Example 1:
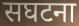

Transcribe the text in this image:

सघटना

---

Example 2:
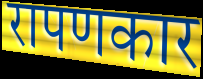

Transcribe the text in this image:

रापणकार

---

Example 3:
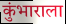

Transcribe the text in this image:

कुंभाराला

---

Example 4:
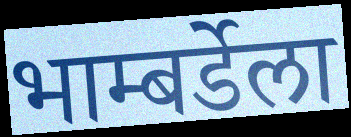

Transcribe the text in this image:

भाम्बर्डेला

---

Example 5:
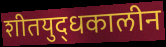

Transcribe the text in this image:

शीतयुद्धकालीन